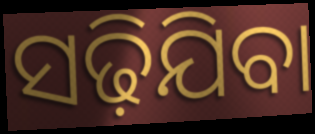
ସଢ଼ିଯିବା